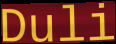
Duli